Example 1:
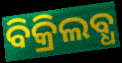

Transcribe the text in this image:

ବିକ୍ରିଲବ୍ଧ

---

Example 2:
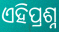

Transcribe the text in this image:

ଏହିପ୍ରଶ୍ନ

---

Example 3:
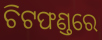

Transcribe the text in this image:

ଚିଟଫଣ୍ଡରେ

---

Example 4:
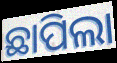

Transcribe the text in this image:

ଛାପିଲା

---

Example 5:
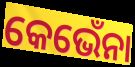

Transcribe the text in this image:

କେଭେଁନା